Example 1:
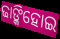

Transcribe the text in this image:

ଢାଙ୍କିହୋଇ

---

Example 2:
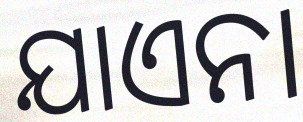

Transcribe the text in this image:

ଯାଏନା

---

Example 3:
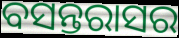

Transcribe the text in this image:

ବସନ୍ତରାସର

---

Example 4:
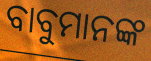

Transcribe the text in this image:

ବାବୁମାନଙ୍କ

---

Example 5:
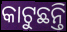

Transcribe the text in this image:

କାଟୁଛନ୍ତି